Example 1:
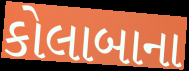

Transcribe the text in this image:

કોલાબાના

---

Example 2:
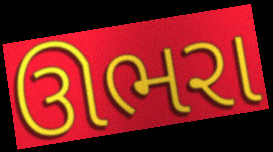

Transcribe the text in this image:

ઊભરા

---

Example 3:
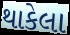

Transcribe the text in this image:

થાકેલા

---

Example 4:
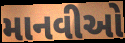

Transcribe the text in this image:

માનવીઓ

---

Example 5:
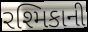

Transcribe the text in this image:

રશ્મિકાની